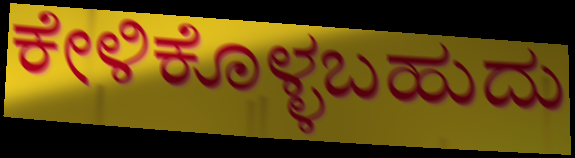
ಕೇಳಿಕೊಳ್ಳಬಹುದು